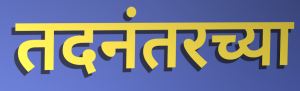
तदनंतरच्या